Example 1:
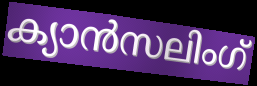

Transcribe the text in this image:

ക്യാൻസലിംഗ്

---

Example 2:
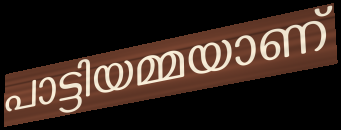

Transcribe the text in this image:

പാട്ടിയമ്മയാണ്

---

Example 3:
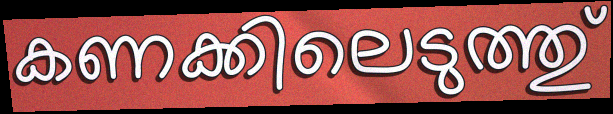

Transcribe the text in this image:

കണക്കിലെടുത്തു്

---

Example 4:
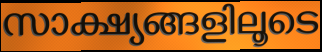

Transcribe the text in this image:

സാക്ഷ്യങ്ങളിലൂടെ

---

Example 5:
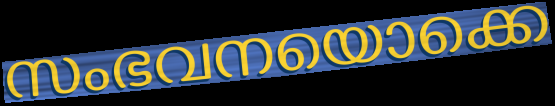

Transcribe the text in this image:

സംഭവനയൊക്കെ